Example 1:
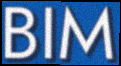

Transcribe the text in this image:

BIM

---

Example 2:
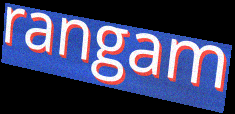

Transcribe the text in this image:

rangam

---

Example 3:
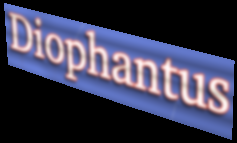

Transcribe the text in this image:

Diophantus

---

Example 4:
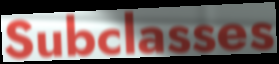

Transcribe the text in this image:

Subclasses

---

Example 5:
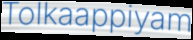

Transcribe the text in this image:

Tolkaappiyam